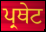
ਪ੍ਰਥੇਟ